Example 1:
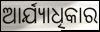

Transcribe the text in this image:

ଆର୍ଯ୍ୟାଧିକାର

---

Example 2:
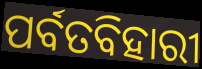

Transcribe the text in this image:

ପର୍ବତବିହାରୀ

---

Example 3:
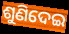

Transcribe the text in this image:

ଶୁଣିଦେଇ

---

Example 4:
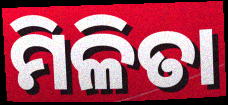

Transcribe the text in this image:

ମିଳିତା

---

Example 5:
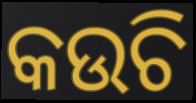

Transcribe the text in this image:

କଉଚି